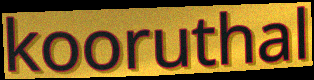
kooruthal